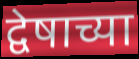
द्वेषाच्या